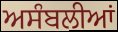
ਅਸੰਬਲੀਆਂ